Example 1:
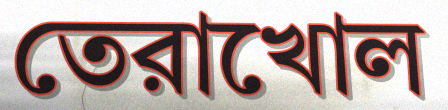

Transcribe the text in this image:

তেরাখোল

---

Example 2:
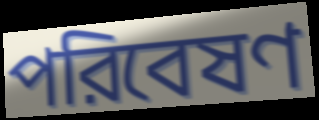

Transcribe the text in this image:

পরিবেষণ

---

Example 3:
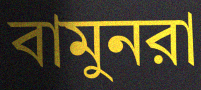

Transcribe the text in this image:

বামুনরা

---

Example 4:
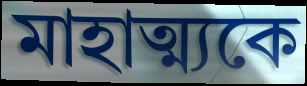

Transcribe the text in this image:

মাহাত্ম্যকে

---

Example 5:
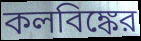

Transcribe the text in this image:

কলবিঙ্কের